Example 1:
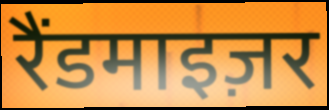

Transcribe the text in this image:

रैंडमाइज़र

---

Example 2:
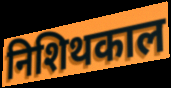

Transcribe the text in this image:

निशिथकाल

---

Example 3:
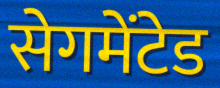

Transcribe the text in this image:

सेगमेंटेड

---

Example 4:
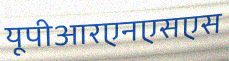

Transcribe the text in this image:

यूपीआरएनएसएस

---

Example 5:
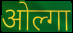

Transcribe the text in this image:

ओल्गा